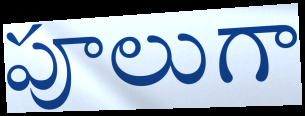
పూలుగా